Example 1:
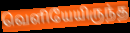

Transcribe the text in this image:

வெளியேயிருந்த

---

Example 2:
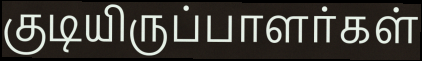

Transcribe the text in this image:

குடியிருப்பாளர்கள்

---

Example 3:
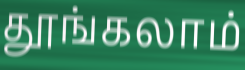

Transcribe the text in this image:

தூங்கலாம்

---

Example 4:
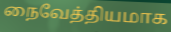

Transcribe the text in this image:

நைவேத்தியமாக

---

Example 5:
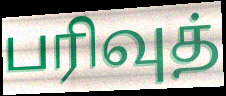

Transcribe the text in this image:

பரிவுத்